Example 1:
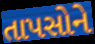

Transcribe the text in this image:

તાપસોને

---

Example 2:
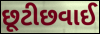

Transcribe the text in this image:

છૂટીછવાઈ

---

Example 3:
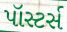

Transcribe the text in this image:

પૉસ્ટર્સ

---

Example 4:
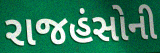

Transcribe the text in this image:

રાજહંસોની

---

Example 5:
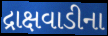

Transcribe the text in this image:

દ્રાક્ષવાડીના